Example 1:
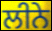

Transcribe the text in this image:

ਲੀਨੇ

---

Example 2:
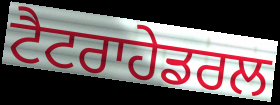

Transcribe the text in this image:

ਟੈਟਰਾਹੇਡਰਲ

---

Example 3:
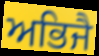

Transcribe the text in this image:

ਅਭਿਜੈ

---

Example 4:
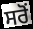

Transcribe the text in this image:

ਸਰੋਂ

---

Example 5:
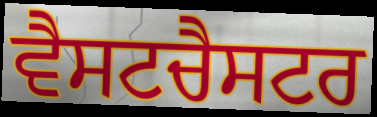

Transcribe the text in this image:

ਵੈਸਟਚੈਸਟਰ